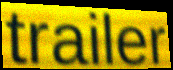
trailer